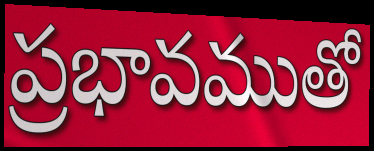
ప్రభావముతో